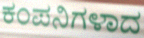
ಕಂಪನಿಗಳಾದ